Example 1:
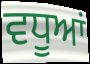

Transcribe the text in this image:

ਵਧੂਆਂ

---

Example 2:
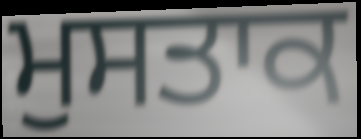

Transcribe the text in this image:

ਮੁਸਤਾਕ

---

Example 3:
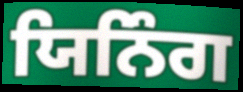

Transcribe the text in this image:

ਯਿਨਿੰਗ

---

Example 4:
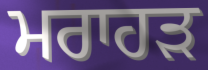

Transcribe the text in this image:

ਮਰਾਹੜ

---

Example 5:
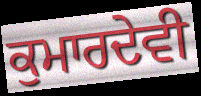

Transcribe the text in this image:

ਕੁਮਾਰਦੇਵੀ